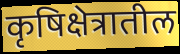
कृषिक्षेत्रातील